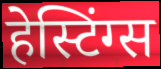
हेस्टिंग्स